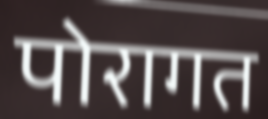
पोरागत